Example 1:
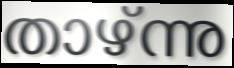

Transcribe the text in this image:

താഴ്ന്നു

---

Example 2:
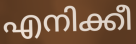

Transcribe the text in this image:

എനിക്കീ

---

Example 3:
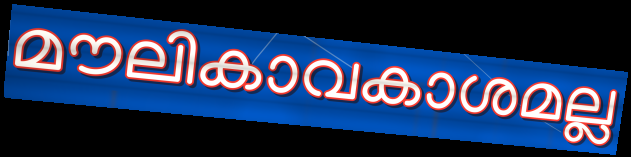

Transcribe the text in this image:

മൗലികാവകാശമല്ല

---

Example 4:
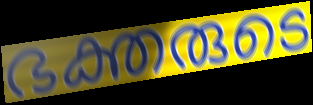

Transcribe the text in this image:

ഭക്തരുടെ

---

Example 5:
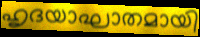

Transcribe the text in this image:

ഹൃദയാഘാതമായി